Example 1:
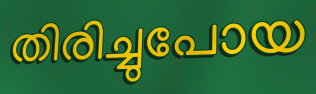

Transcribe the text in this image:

തിരിച്ചുപോയ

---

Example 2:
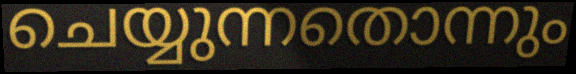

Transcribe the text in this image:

ചെയ്യുന്നതൊന്നും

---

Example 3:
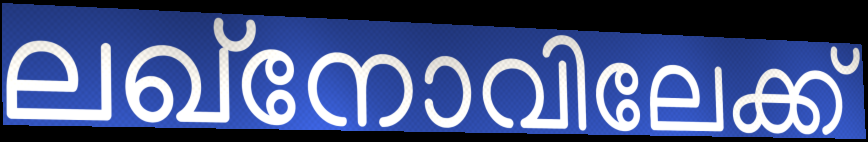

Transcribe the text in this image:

ലഖ്നോവിലേക്ക്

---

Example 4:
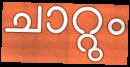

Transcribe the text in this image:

ചാറ്റും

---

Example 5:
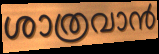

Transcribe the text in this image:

ശാത്രവാൻ